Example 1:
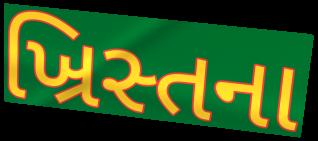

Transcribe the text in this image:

ખ્રિસ્તના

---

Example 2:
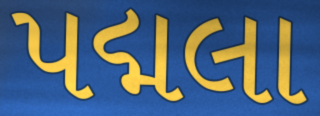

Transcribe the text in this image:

પદ્મલા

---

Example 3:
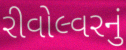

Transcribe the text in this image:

રીવોલ્વરનું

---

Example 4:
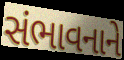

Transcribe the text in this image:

સંભાવનાને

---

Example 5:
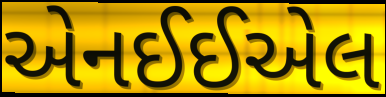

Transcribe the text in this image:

એનઈઈએલ